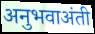
अनुभवाअंती